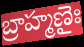
బ్రాహ్మణైః